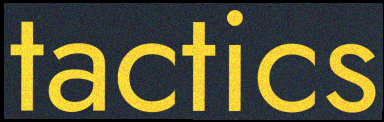
tactics